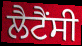
ਲੈਟੈਂਸੀ